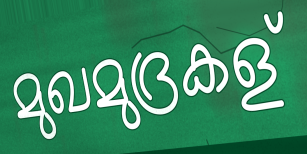
മുഖമുദ്രകള്